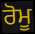
ਰੋਮੂ